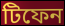
টিফেন